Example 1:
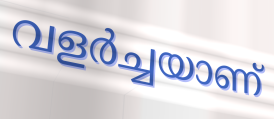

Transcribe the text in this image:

വളർച്ചയാണ്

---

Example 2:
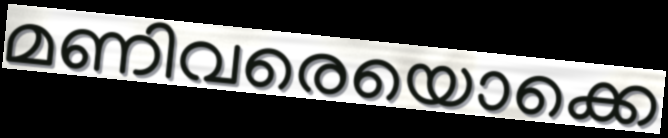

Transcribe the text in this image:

മണിവരെയൊക്കെ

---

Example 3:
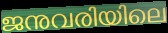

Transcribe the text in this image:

ജനുവരിയിലെ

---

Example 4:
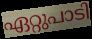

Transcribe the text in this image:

ഏറ്റുപാടി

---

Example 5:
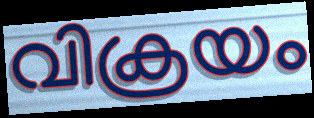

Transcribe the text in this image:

വിക്രയം